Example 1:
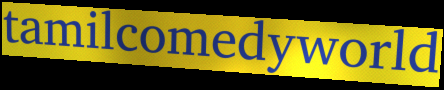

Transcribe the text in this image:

tamilcomedyworld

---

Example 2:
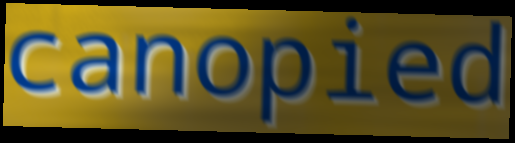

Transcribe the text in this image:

canopied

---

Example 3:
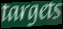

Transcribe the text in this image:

targets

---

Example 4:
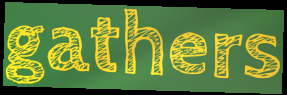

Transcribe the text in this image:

gathers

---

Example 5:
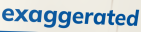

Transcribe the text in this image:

exaggerated